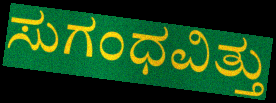
ಸುಗಂಧವಿತ್ತು